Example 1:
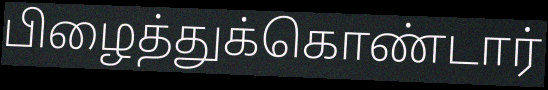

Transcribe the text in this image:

பிழைத்துக்கொண்டார்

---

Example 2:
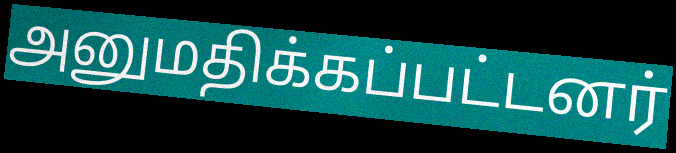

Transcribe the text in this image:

அனுமதிக்கப்பட்டனர்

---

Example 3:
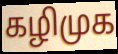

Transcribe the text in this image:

கழிமுக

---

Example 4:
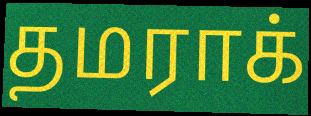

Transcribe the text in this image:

தமராக்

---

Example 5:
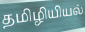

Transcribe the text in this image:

தமிழியியல்